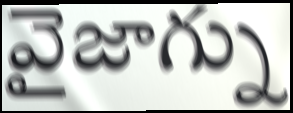
వైజాగ్ను